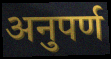
अनुपर्ण